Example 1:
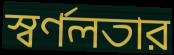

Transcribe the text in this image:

স্বর্ণলতার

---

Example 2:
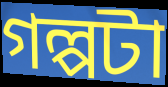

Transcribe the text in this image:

গল্পটা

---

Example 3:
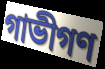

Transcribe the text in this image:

গাভীগণ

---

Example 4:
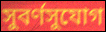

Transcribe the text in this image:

সুবর্ণসুযোগ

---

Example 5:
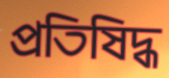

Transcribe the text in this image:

প্রতিষিদ্ধ